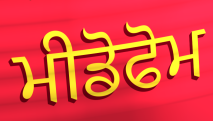
ਮੀਡੋਫੋਮ